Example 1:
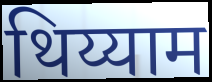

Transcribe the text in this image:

थिय्याम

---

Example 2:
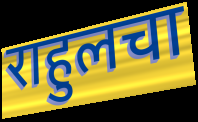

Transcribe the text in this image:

राहुलचा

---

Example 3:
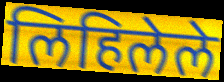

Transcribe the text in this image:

लिहिलेले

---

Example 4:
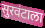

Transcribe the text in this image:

सुरवंटाला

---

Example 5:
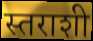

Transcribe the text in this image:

स्तराशी